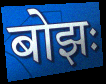
बोझः